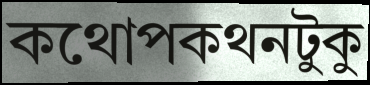
কথোপকথনটুকু